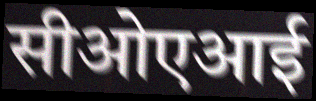
सीओएआई